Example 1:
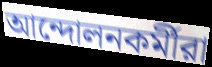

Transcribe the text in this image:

আন্দোলনকর্মীরা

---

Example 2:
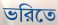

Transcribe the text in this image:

ভরিতে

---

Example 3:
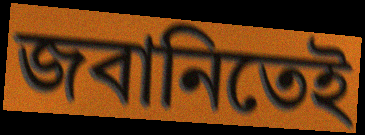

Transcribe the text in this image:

জবানিতেই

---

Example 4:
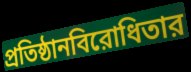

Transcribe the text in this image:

প্রতিষ্ঠানবিরোধিতার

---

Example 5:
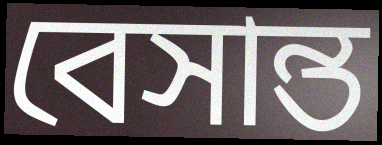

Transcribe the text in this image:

বেসান্ত